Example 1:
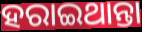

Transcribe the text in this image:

ହରାଇଥାନ୍ତା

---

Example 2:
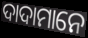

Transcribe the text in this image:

ଦାଦାମାନେ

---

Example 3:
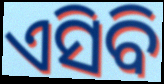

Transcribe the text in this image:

ଏସିବି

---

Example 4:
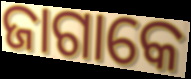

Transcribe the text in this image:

ଜାଗାକେ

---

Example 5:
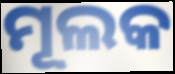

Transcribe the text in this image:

ମୂଲକ